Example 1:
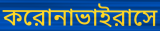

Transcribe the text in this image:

করোনাভাইরাসে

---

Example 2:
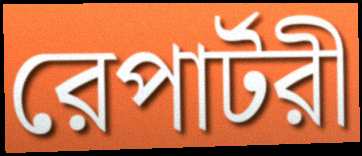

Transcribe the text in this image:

রেপার্টরী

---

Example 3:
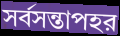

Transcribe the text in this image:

সর্বসন্তাপহর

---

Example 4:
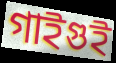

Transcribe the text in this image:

গাইগুই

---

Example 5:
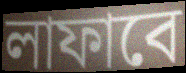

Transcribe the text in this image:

লাফাবে